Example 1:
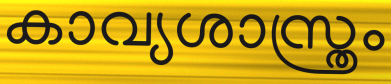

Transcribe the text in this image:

കാവ്യശാസ്ത്രം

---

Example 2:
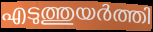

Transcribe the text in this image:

എടുത്തുയർത്തി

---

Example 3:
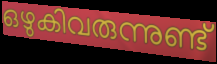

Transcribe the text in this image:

ഒഴുകിവരുന്നുണ്ട്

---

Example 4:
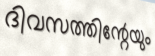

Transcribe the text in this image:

ദിവസത്തിന്റേയും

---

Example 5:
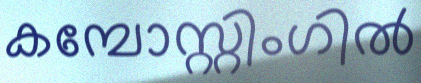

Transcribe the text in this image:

കമ്പോസ്റ്റിംഗിൽ